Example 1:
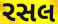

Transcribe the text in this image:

રસલ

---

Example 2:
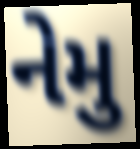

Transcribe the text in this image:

નેમુ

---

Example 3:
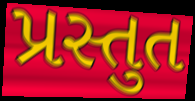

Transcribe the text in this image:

પ્રસ્તુત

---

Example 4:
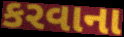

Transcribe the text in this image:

કરવાના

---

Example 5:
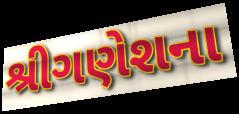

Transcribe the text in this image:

શ્રીગણેશના